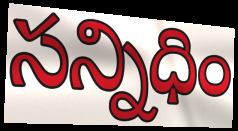
సన్నిధిం